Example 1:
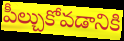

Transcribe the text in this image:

పీల్చుకోవడానికి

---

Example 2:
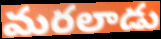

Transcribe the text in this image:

మరలాడు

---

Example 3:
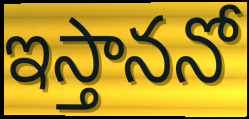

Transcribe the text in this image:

ఇస్తాననో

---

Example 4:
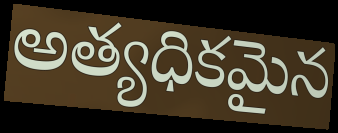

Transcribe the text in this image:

అత్యధికమైన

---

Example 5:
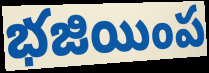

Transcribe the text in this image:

భజియింప